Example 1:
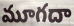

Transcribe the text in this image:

మూగదా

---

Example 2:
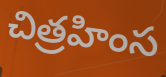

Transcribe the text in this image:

చిత్రహింస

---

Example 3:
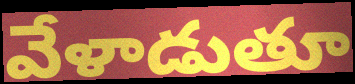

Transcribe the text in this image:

వేళాడుతూ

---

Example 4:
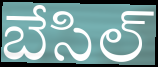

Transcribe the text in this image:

బేసిల్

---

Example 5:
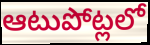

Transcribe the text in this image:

ఆటుపోట్లలో